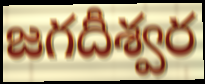
జగదీశ్వర